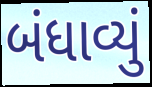
બંધાવ્યું